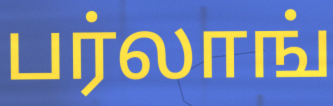
பர்லாங்